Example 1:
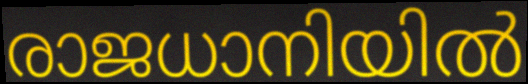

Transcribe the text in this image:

രാജധാനിയിൽ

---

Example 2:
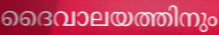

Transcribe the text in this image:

ദൈവാലയത്തിനും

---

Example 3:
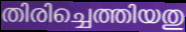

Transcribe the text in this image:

തിരിച്ചെത്തിയതു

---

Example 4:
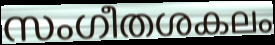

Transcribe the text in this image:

സംഗീതശകലം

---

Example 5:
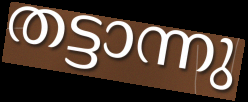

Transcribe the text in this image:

തട്ടാന്നു